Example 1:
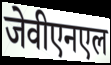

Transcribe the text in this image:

जेवीएनएल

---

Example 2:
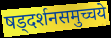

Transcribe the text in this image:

षड्दर्शनसमुच्चये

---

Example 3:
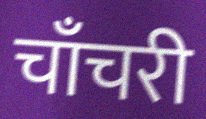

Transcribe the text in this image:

चाँचरी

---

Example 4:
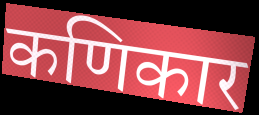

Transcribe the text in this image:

कणिकार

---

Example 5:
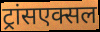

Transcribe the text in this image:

ट्रांसएक्सल